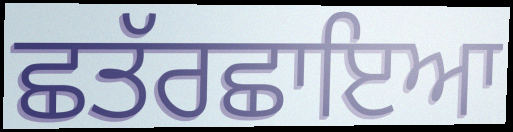
ਛਤੱਰਛਾਇਆ